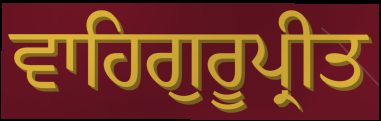
ਵਾਹਿਗੁਰੂਪ੍ਰੀਤ